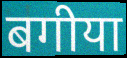
बगीया